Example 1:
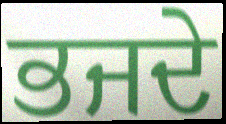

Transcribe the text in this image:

ਭਜਦੇ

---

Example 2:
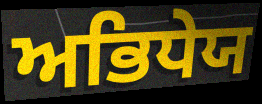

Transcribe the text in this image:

ਅਭਿਧੇਯ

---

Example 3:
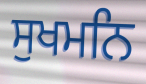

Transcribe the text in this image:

ਸੁਖਮਨਿ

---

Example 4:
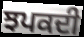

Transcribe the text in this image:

ਝਪਕਦੀ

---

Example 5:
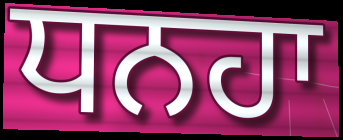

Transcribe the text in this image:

ਧਨਹਾ